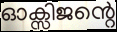
ഓക്സിജന്റെ